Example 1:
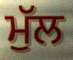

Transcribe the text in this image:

ਮੁੱਲ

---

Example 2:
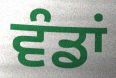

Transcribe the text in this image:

ਵੰਡਾਂ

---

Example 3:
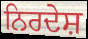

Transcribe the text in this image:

ਨਿਰਦੇਸ਼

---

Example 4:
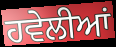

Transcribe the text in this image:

ਹਵੇਲੀਆਂ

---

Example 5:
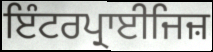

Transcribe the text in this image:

ਇੰਟਰਪ੍ਰਾਈਜਿਜ਼